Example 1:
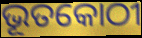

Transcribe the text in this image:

ଭୂତକୋଠୀ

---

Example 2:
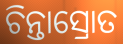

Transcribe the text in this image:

ଚିନ୍ତାସ୍ରୋତ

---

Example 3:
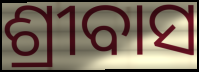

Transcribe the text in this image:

ଶ୍ରୀବାସ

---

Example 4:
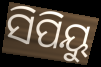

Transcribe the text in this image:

ସିପିୟୁ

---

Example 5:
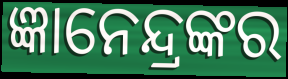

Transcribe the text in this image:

ଜ୍ଞାନେନ୍ଦ୍ରଙ୍କର